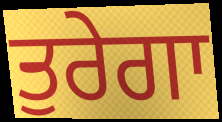
ਤੁਰੇਗਾ